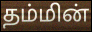
தம்மின்